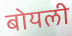
बोयली